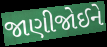
જાણીજોઈને